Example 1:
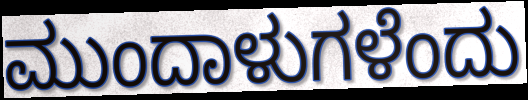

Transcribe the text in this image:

ಮುಂದಾಳುಗಳೆಂದು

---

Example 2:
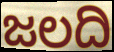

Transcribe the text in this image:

ಜಲದಿ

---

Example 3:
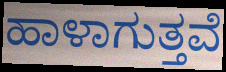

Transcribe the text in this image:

ಹಾಳಾಗುತ್ತವೆ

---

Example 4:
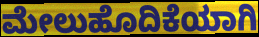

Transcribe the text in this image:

ಮೇಲುಹೊದಿಕೆಯಾಗಿ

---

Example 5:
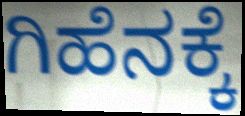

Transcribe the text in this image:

ಗಿಹೆನಕ್ಕೆ